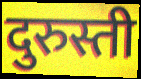
दुरुस्ती